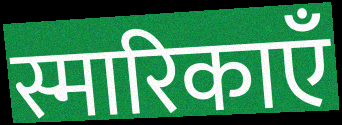
स्मारिकाएँ